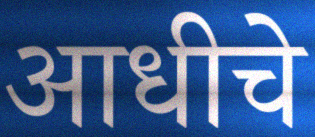
आधीचे